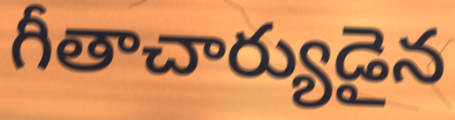
గీతాచార్యుడైన